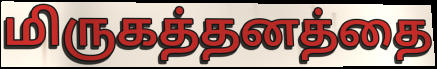
மிருகத்தனத்தை